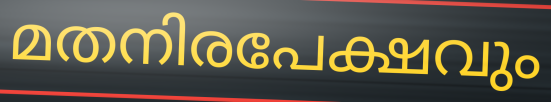
മതനിരപേക്ഷവും